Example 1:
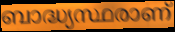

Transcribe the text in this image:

ബാദ്ധ്യസ്ഥരാണ്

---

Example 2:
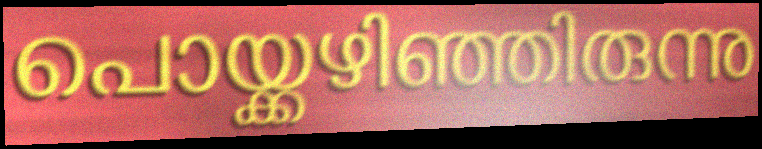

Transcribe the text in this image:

പൊയ്ക്കഴിഞ്ഞിരുന്നു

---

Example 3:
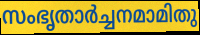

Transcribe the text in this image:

സംഭൃതാർച്ചനമാമിതു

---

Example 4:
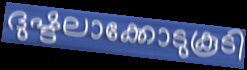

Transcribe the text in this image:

ദുഷ്ടലാക്കോടുകൂടി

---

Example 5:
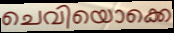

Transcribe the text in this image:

ചെവിയൊക്കെ